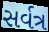
સર્વત્ર